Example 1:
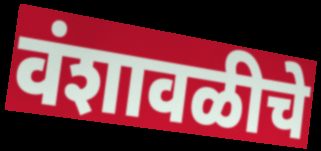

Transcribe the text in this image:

वंशावळीचे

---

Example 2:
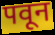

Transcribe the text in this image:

पवून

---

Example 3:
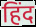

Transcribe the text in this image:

हिंद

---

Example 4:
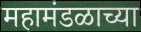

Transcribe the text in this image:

महामंडळाच्या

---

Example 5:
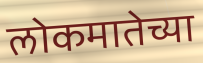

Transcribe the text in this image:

लोकमातेच्या